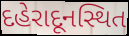
દહેરાદૂનસ્થિત